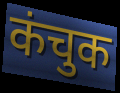
कंचुक